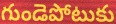
గుండెపోటుకు